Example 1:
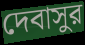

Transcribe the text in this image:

দেবাসুর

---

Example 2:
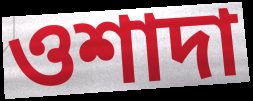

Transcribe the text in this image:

ওশাদা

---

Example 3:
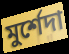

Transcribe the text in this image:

মুর্শেদা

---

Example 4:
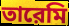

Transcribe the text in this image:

তারেমি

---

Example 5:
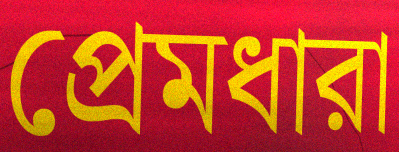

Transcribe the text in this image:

প্রেমধারা